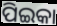
ପିଇକା